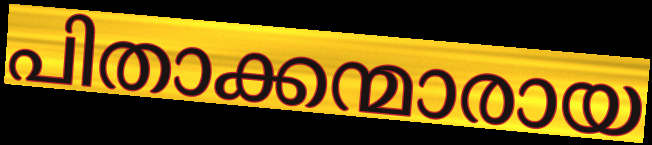
പിതാക്കന്മാരായ